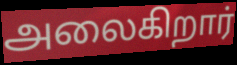
அலைகிறார்